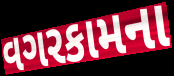
વગરકામના